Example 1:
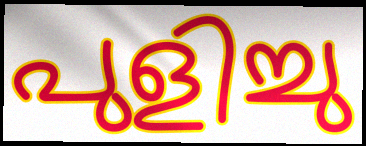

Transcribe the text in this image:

പുളിച്ചു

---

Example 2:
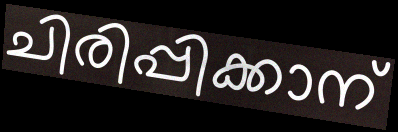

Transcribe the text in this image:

ചിരിപ്പിക്കാന്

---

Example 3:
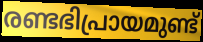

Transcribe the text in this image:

രണ്ടഭിപ്രായമുണ്ട്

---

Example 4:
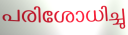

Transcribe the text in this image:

പരിശോധിച്ചു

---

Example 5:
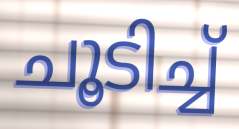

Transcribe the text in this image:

ചൂടിച്ച്